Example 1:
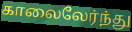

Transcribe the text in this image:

காலைலேர்ந்து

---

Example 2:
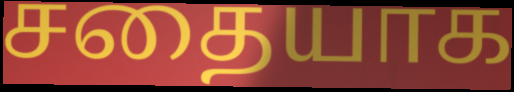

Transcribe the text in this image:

சதையாக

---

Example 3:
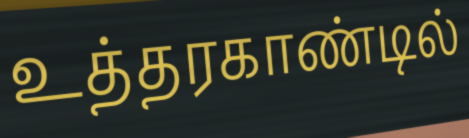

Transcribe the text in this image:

உத்தரகாண்டில்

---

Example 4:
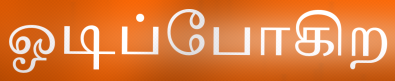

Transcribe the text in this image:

ஓடிப்போகிற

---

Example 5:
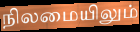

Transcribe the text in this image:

நிலமையிலும்